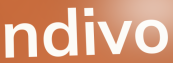
ndivo